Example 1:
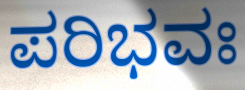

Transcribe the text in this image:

ಪರಿಭವಃ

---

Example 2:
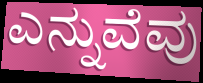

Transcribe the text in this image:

ಎನ್ನುವೆವು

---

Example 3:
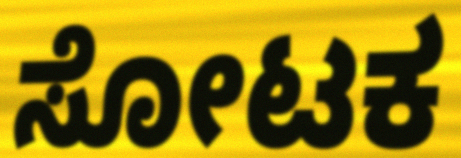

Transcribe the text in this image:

ಸೋಟಕ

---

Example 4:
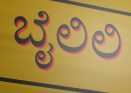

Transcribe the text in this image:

ಬೈಲಿಲಿ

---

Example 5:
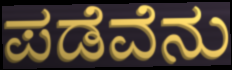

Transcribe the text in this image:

ಪಡೆವೆನು